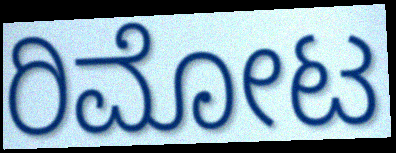
ರಿಮೋಟ